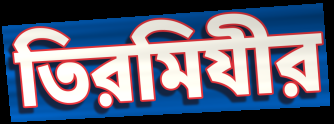
তিরমিযীর